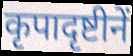
कृपादृष्टीनें